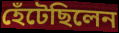
হেঁটেছিলেন